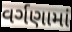
વર્ગણામાં